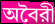
অবৈরী